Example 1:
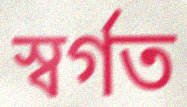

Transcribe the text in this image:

স্বৰ্গত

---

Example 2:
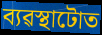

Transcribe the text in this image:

ব্যৱস্থাটোত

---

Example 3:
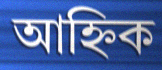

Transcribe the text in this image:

আহ্নিক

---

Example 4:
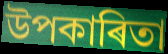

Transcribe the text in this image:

উপকাৰিতা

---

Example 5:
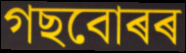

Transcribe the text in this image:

গছবোৰৰ